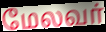
மேலவர்